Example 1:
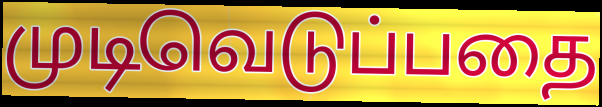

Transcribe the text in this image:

முடிவெடுப்பதை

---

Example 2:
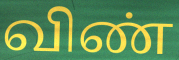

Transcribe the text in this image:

விண்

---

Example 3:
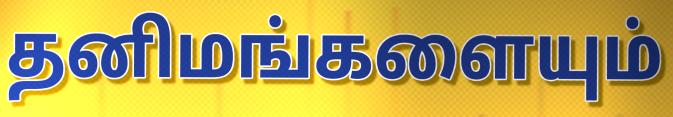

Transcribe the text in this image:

தனிமங்களையும்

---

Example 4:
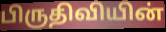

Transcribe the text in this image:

பிருதிவியின்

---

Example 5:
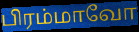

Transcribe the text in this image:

பிரம்மாவோ